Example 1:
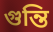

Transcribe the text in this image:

গুন্তি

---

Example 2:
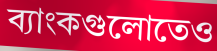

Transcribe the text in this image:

ব্যাংকগুলোতেও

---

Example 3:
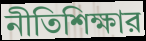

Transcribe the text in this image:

নীতিশিক্ষার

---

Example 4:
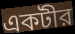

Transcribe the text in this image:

একটীর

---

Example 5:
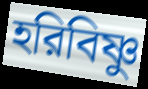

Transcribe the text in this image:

হরিবিষ্ণু